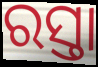
ରସ୍ତା